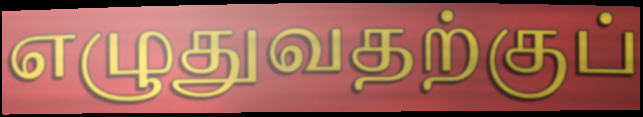
எழுதுவதற்குப்